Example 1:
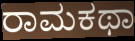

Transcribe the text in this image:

ರಾಮಕಥಾ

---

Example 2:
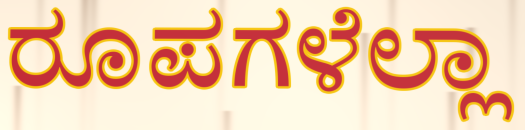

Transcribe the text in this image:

ರೂಪಗಳೆಲ್ಲಾ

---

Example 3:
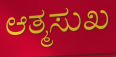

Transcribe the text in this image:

ಆತ್ಮಸುಖ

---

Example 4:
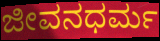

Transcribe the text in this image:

ಜೀವನಧರ್ಮ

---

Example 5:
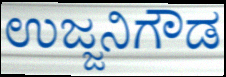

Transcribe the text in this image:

ಉಜ್ಜನಿಗೌಡ